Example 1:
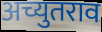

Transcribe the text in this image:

अच्युतराव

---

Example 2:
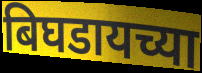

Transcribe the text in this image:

बिघडायच्या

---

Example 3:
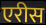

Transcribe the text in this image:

एरीस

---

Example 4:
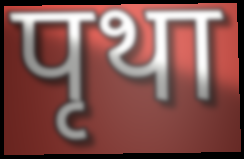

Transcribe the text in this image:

पृथा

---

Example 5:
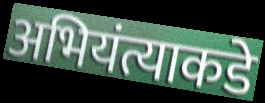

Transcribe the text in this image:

अभियंत्याकडे